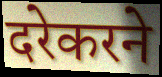
दरेकरने